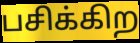
பசிக்கிற